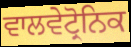
ਵਾਲਵੇਟ੍ਰੋਨਿਕ